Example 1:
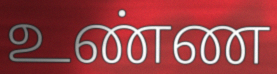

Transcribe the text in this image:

உண்ண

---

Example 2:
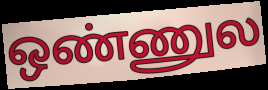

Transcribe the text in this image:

ஒண்ணுல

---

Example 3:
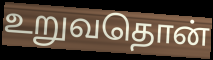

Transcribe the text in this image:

உறுவதொன்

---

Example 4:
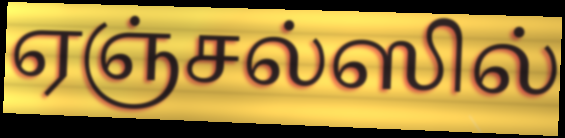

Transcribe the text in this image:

ஏஞ்சல்ஸில்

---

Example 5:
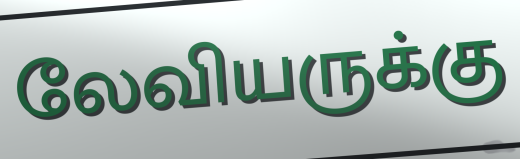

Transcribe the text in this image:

லேவியருக்கு